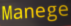
Manege